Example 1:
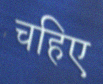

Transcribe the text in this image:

चहिए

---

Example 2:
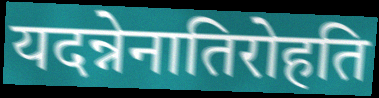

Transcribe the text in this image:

यदन्नेनातिरोहति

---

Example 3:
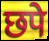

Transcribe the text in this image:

छपे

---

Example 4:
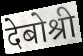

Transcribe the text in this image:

देबोश्री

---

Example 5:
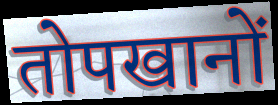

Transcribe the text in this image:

तोपखानों